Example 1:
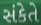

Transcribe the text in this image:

સંકેતે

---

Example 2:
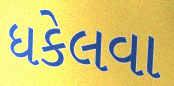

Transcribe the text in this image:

ધકેલવા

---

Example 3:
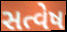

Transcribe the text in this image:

સત્વેષ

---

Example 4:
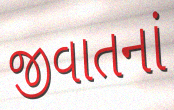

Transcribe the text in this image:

જીવાતનાં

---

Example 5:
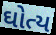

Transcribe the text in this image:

ઘોત્ય